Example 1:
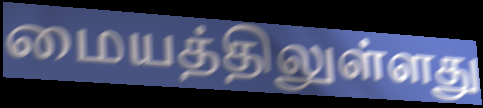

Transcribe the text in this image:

மையத்திலுள்ளது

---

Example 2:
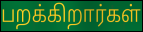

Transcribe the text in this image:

பறக்கிறார்கள்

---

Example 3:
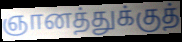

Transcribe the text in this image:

ஞானத்துக்குத்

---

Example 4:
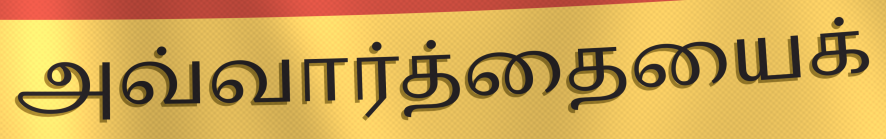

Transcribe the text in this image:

அவ்வார்த்தையைக்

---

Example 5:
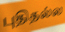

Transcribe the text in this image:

புதிதல்ல